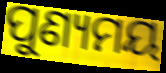
ପୁଣ୍ୟମୟ